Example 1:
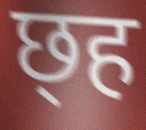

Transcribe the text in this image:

छ्ह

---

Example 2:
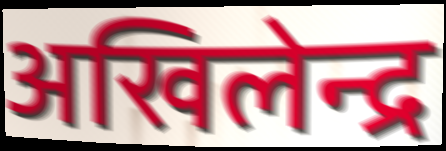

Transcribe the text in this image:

अखिलेन्द्र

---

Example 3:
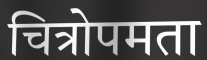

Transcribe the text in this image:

चित्रोपमता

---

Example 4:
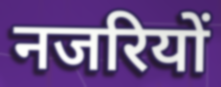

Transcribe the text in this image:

नजरियों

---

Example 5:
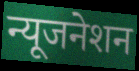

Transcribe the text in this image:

न्यूजनेशन